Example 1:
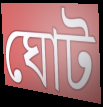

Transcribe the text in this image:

ঘোট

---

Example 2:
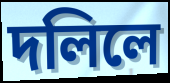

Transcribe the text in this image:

দলিলে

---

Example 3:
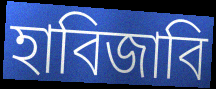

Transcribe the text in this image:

হাবিজাবি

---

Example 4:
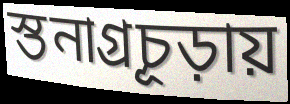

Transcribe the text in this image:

স্তনাগ্রচূড়ায়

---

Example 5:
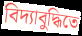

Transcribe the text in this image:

বিদ্যাবুদ্ধিতে